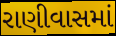
રાણીવાસમાં